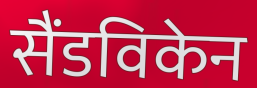
सैंडविकेन